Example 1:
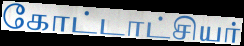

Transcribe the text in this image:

கோட்டாட்சியர்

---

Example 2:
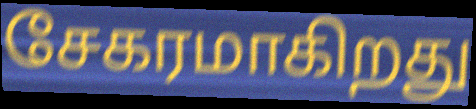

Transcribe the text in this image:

சேகரமாகிறது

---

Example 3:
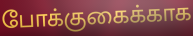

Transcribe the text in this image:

போக்குகைக்காக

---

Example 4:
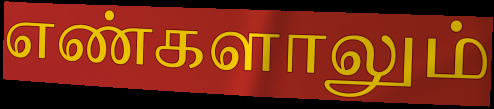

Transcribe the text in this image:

எண்களாலும்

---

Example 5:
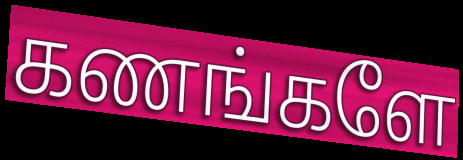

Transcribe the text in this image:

கணங்களே